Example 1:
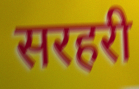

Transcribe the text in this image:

सरहरी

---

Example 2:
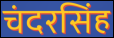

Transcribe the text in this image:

चंदरसिंह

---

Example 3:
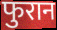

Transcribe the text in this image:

फुरान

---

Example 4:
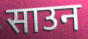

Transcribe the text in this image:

साउन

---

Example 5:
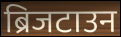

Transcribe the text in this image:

ब्रिजटाउन